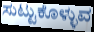
ಸುಟ್ಟುಕೊಳ್ಳುವ